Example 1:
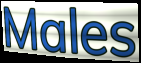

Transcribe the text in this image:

Males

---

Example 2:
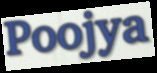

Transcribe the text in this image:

Poojya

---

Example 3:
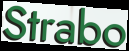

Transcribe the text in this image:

Strabo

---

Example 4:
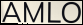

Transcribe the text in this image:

AMLO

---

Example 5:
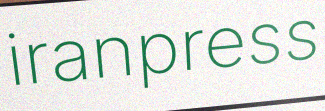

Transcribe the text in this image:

iranpress